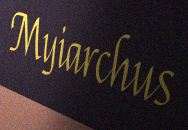
Myiarchus